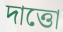
দাত্তো